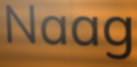
Naag